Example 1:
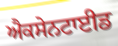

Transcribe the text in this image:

ਐਕਸੇਨਟਾਈਡ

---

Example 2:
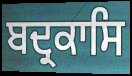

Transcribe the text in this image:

ਬਦ੍ਰਕਾਸਿ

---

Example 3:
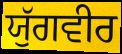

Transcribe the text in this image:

ਯੁੱਗਵੀਰ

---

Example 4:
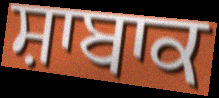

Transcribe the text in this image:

ਸ਼ਾਬਾਕ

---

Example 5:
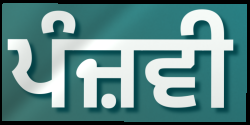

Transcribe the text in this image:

ਪੰਜ਼ਵੀ